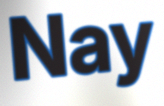
Nay